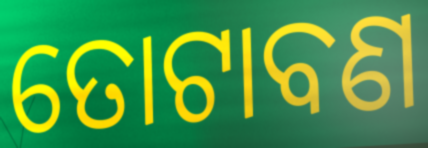
ତୋଟାବଣ